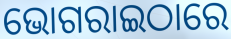
ଭୋଗରାଇଠାରେ